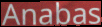
Anabas